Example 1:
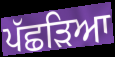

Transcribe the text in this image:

ਪੱਛੜਿਆ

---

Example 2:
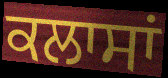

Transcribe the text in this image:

ਕਲਾਸਾਂ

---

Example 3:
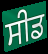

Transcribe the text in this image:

ਸੀਡ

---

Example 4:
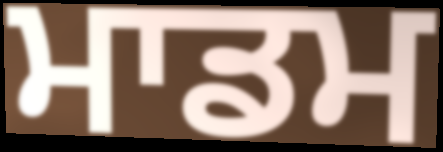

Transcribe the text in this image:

ਮਾਡਮ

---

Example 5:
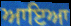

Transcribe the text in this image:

ਆਇਆ